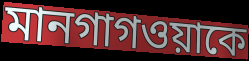
মানগাগওয়াকে